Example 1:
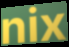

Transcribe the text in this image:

nix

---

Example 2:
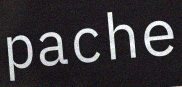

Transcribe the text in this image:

pache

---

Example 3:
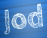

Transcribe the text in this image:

Jod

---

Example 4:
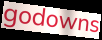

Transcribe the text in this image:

godowns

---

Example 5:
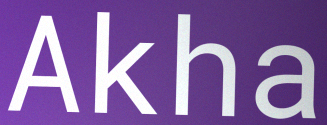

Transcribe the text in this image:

Akha